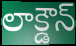
లాక్డౌన్